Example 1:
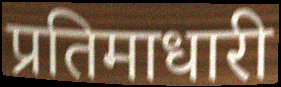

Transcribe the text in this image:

प्रतिमाधारी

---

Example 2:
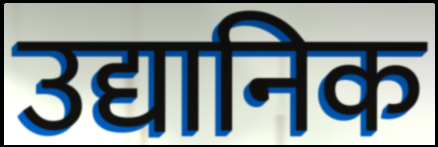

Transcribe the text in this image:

उद्यानिक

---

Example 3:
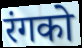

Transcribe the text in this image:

रंगको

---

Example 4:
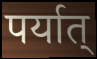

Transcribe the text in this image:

पर्यात्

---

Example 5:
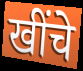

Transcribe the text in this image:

खींचे